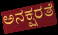
ಅನಕ್ಷರತೆ